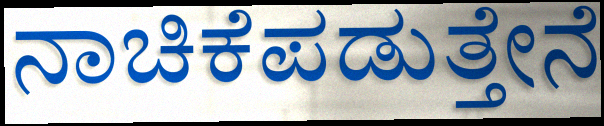
ನಾಚಿಕೆಪಡುತ್ತೇನೆ